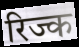
रिज्क